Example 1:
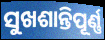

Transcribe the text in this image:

ସୁଖଶାନ୍ତିପୂର୍ଣ୍ଣ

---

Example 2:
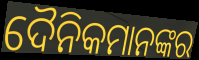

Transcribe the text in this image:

ଦୈନିକମାନଙ୍କର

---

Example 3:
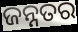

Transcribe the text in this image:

ଜନ୍ନତର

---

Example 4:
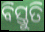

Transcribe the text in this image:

ବିସ୍ତୁତି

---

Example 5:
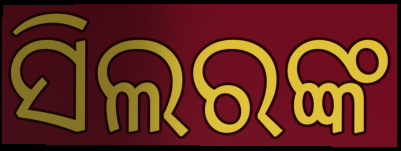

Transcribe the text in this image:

ସିଲରଙ୍କ